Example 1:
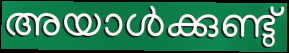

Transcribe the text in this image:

അയാൾക്കുണ്ടു്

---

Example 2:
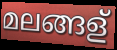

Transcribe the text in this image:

മലങ്ങള്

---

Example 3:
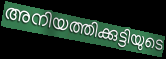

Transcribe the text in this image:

അനിയത്തിക്കുട്ടിയുടെ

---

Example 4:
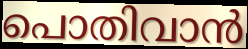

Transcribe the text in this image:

പൊതിവാൻ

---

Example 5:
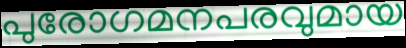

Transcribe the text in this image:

പുരോഗമനപരവുമായ